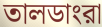
তালডাংরা